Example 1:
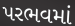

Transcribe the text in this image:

પરભવમાં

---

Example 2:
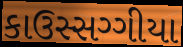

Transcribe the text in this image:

કાઉસ્સગ્ગીયા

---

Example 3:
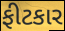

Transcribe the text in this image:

ફીટકાર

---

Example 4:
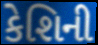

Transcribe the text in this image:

કેશિની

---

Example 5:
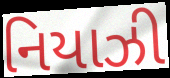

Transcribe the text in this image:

નિયાઝી